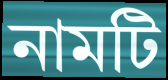
নামটি